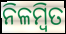
ନିଳମ୍ବିତ